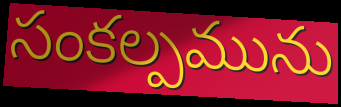
సంకల్పమును